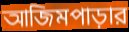
আজিমপাড়ার